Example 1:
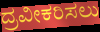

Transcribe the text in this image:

ದ್ರವೀಕರಿಸಲು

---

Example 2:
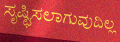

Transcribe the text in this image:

ಸೃಷ್ಟಿಸಲಾಗುವುದಿಲ್ಲ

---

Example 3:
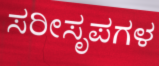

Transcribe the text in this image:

ಸರೀಸೃಪಗಳ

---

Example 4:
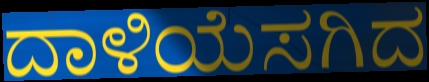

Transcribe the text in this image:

ದಾಳಿಯೆಸಗಿದ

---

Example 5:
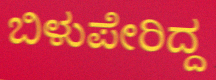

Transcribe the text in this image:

ಬಿಳುಪೇರಿದ್ದ